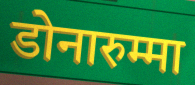
डोनारुम्मा